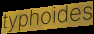
typhoides